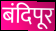
बंदिपूर